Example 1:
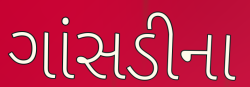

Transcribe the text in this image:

ગાંસડીના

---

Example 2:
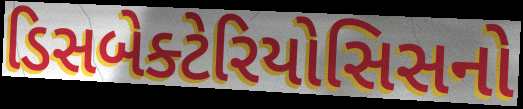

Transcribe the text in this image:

ડિસબેક્ટેરિયોસિસનો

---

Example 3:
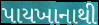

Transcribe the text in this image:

પાયખાનાથી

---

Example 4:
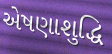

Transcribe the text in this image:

એષણાશુદ્ધિ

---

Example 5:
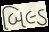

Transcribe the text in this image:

બિલ્ડ